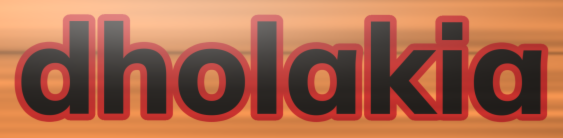
dholakia